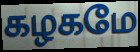
கழகமே